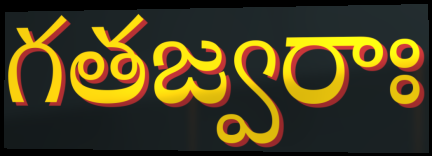
గతజ్వరాః